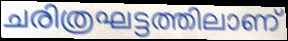
ചരിത്രഘട്ടത്തിലാണ്